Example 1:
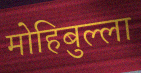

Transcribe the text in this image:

मोहिबुल्ला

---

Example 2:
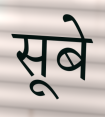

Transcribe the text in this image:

सूबे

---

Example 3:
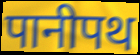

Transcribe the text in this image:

पानीपथ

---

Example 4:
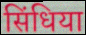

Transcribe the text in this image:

सिंधिया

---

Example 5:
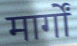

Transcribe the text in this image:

मार्गों